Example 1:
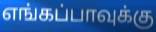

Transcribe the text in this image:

எங்கப்பாவுக்கு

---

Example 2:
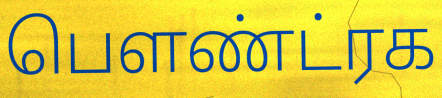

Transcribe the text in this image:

பௌண்ட்ரக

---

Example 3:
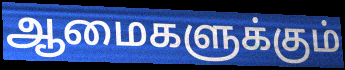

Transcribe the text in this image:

ஆமைகளுக்கும்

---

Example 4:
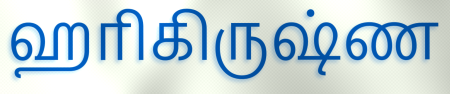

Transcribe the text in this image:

ஹரிகிருஷ்ண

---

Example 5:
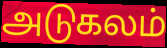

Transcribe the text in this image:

அடுகலம்